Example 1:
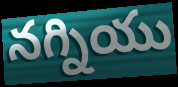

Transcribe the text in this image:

నగ్నియు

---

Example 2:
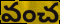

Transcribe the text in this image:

వంచ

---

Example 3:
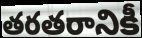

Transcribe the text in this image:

తరతరానికీ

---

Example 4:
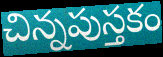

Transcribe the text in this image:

చిన్నపుస్తకం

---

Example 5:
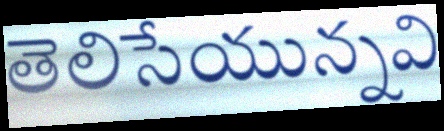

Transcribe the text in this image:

తెలిసేయున్నవి